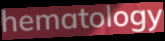
hematology